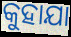
କୁହାଯା